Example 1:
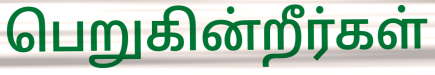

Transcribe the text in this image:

பெறுகின்றீர்கள்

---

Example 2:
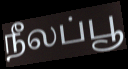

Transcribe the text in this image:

நீலப்பூ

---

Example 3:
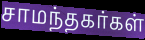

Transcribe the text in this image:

சாமந்தகர்கள்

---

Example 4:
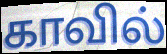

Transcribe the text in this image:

காவில்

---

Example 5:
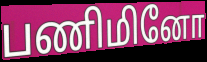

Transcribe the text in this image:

பணிமினோ